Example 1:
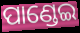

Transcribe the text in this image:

ପାଣ୍ଡେଇ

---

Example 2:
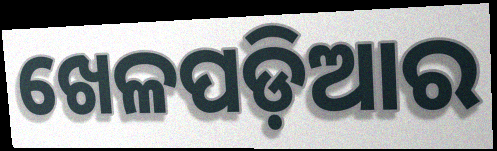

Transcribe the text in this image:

ଖେଳପଡ଼ିଆର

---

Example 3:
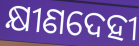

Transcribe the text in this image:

କ୍ଷୀଣଦେହୀ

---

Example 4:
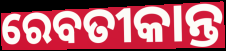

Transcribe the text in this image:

ରେବତୀକାନ୍ତ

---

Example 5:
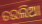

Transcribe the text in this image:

ତଉଲିଆ